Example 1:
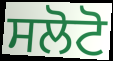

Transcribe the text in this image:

ਸਲੋਟੋ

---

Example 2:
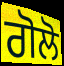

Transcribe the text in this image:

ਗੋਲੋ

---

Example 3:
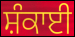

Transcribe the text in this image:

ਸ਼ੰਕਾਈ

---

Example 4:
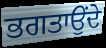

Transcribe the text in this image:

ਭਗਤਾਉਂਦੇ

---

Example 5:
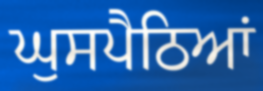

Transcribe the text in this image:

ਘੁਸਪੈਠਿਆਂ